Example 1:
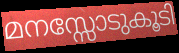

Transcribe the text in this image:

മനസ്സോടുകൂടി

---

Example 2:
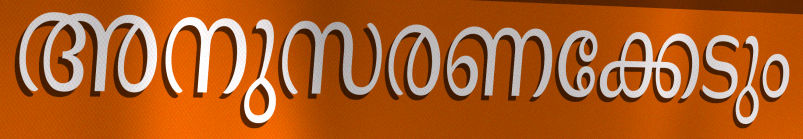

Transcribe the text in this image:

അനുസരണക്കേടും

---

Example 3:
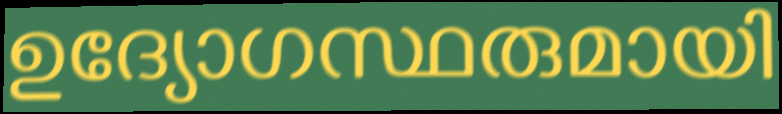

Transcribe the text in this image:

ഉദ്യോഗസ്ഥരുമായി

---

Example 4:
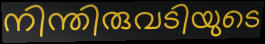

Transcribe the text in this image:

നിന്തിരുവടിയുടെ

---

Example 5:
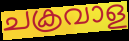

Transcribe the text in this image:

ചക്രവാള